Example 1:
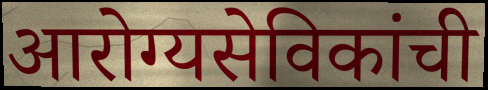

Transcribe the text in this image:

आरोग्यसेविकांची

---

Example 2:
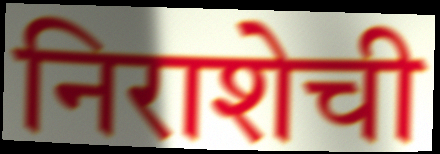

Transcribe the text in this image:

निराशेची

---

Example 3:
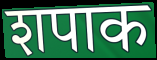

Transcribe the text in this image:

शपाक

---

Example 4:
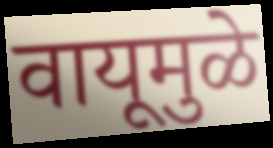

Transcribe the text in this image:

वायूमुळे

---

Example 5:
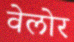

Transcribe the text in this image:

वेलोर